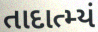
તાદાત્મ્યં